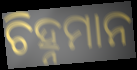
ଚିହ୍ନମାନ